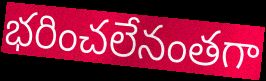
భరించలేనంతగా